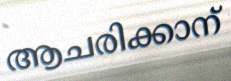
ആചരിക്കാന്